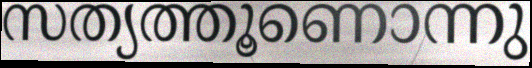
സത്യത്തൂണൊന്നു